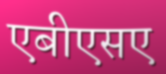
एबीएसए